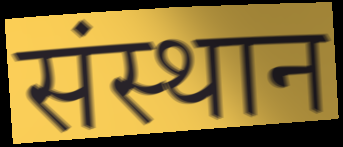
संस्थान